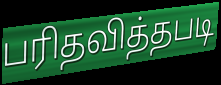
பரிதவித்தபடி